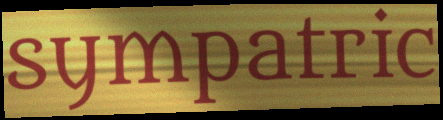
sympatric